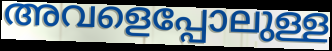
അവളെപ്പോലുള്ള